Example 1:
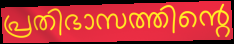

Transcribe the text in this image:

പ്രതിഭാസത്തിന്റെ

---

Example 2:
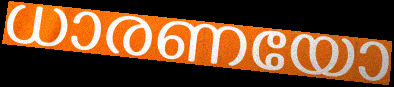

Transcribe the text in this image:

ധാരണയോ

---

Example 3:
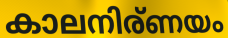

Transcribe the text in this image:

കാലനിര്ണയം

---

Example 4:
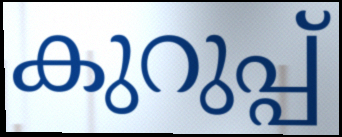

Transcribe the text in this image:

കുറുപ്പ്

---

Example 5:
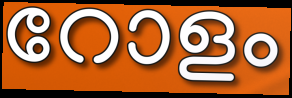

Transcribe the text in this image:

റോളം